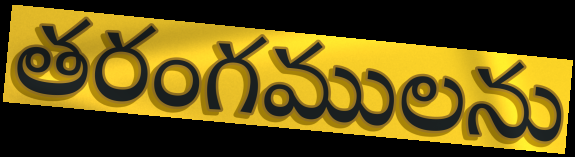
తరంగములను